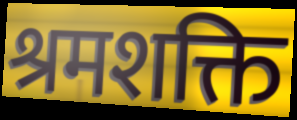
श्रमशक्ति